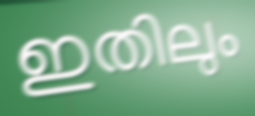
ഇതിലും